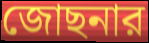
জোছনার